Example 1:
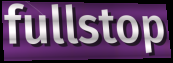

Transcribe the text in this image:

fullstop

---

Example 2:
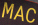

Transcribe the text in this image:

MAC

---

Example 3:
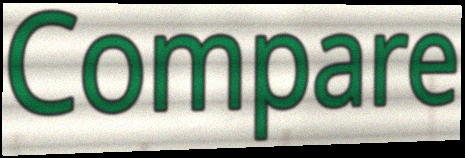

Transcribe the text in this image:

Compare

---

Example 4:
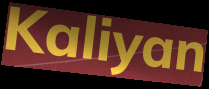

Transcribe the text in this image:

Kaliyan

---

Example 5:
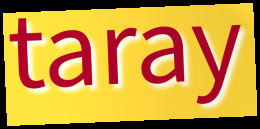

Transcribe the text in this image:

taray